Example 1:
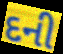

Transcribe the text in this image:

દની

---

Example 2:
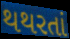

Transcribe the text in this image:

થથરતાં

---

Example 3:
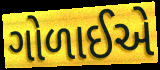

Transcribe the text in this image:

ગોળાઈએ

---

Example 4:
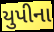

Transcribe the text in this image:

યુપીના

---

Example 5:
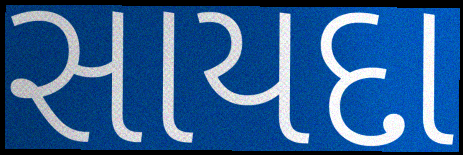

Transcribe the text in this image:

સાયદા